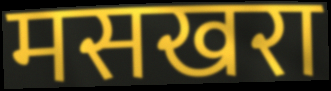
मसखरा